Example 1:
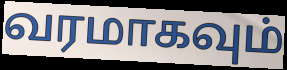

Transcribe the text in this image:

வரமாகவும்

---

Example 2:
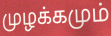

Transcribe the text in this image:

முழக்கமும்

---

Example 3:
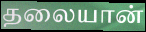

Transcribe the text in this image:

தலையான்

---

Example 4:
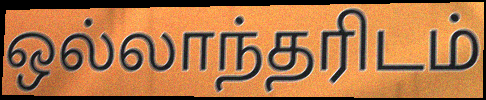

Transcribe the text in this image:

ஒல்லாந்தரிடம்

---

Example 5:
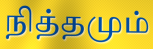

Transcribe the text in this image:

நித்தமும்